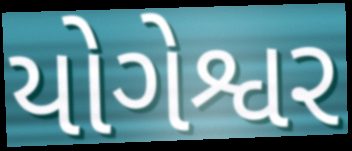
યોગેશ્વર